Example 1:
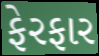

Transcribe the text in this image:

ફેરફાર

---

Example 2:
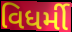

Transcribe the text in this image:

વિધર્મી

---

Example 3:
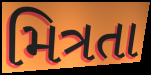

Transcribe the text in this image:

મિત્રતા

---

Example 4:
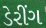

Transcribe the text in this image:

ડેરીંગ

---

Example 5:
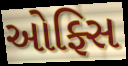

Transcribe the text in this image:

ઓફ્સિ